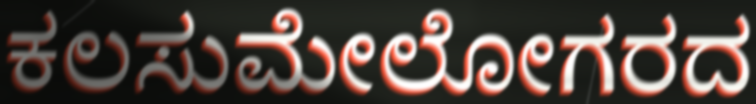
ಕಲಸುಮೇಲೋಗರದ